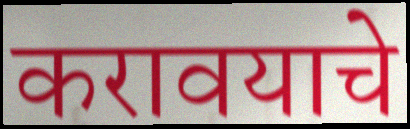
करावयाचे